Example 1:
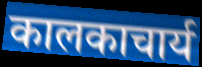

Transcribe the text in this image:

कालकाचार्य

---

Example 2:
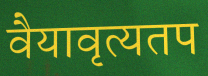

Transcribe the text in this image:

वैयावृत्यतप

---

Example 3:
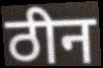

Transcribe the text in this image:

ठीन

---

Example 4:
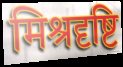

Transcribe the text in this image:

मिश्रदृष्टि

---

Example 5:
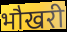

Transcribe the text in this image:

भौखरी